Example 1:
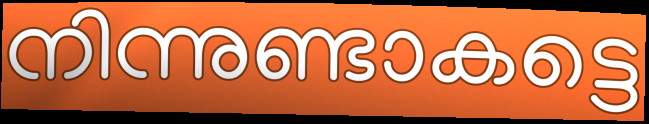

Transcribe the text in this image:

നിന്നുണ്ടാകട്ടെ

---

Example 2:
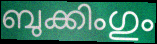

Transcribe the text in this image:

ബുക്കിംഗും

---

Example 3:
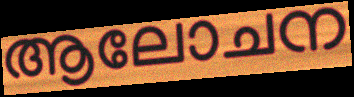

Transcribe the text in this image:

ആലോചന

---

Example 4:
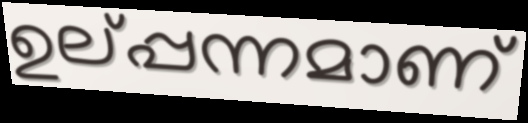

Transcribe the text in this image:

ഉല്പ്പന്നമാണ്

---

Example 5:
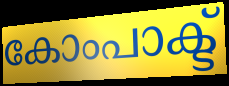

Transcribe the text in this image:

കോംപാക്ട്